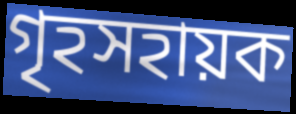
গৃহসহায়ক